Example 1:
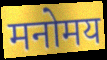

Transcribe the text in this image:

मनोमय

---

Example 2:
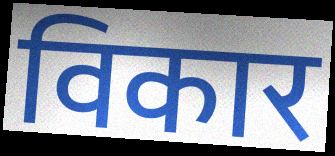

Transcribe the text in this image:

विकार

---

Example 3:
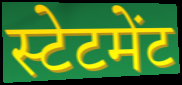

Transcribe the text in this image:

स्टेटमेंट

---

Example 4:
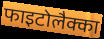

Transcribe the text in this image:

फाइटोलैक्का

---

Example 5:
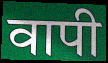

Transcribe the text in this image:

वापी